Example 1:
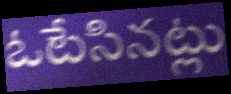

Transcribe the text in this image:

ఓటేసినట్లు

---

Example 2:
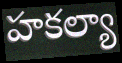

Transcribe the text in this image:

హకల్యా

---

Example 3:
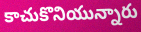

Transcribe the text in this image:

కాచుకొనియున్నారు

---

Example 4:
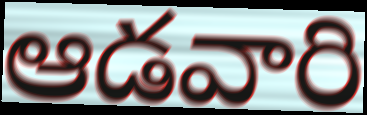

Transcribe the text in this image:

ఆడవారి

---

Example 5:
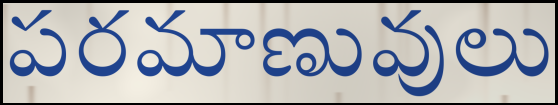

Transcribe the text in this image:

పరమాణువులు